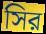
সির